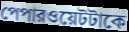
পেপারওয়েটটাকে